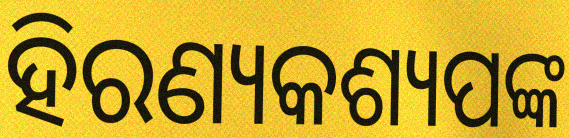
ହିରଣ୍ୟକଶ୍ୟପଙ୍କ